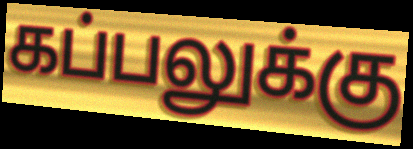
கப்பலுக்கு